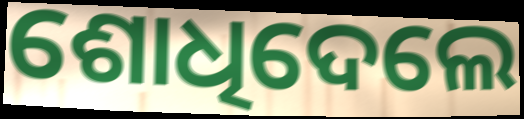
ଶୋଧିଦେଲେ